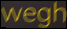
wegh